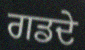
ਗਡਦੇ